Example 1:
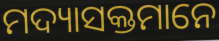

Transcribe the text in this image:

ମଦ୍ୟାସକ୍ତମାନେ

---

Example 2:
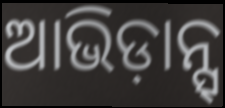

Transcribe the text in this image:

ଆଭିଡ଼ାନ୍ସ୍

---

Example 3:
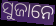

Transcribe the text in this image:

ସୁଜାନେ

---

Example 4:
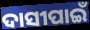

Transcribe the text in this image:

ଦାସୀପାଇଁ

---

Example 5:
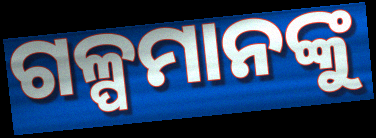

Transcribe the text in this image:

ଗଳ୍ପମାନଙ୍କୁ